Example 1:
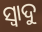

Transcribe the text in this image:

ସ୍ଵାଦୁ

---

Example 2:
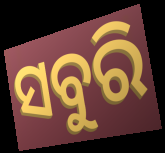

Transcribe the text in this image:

ସବୁରି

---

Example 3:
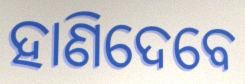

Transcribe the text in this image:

ହାଣିଦେବେ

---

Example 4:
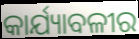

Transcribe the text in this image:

କାର୍ଯ୍ୟାବଳୀର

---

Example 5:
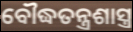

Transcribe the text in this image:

ବୌଦ୍ଧତନ୍ତ୍ରଶାସ୍ତ୍ର